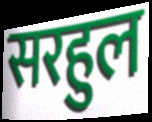
सरहुल